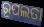
ରୂପଲତା